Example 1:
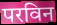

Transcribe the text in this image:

परविन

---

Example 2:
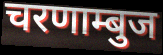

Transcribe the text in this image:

चरणाम्बुज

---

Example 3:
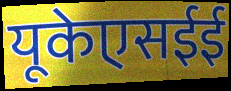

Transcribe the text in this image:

यूकेएसईई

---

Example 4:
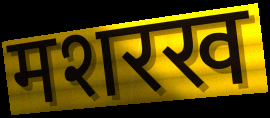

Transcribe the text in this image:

मशरख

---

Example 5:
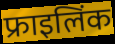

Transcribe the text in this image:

फ्राइलिंक